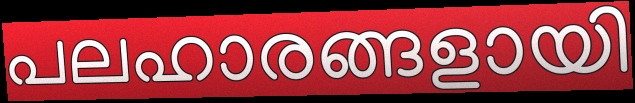
പലഹാരങ്ങളായി